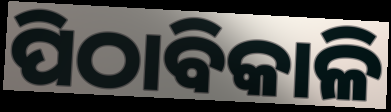
ପିଠାବିକାଳି